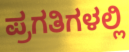
ಪ್ರಗತಿಗಳಲ್ಲಿ